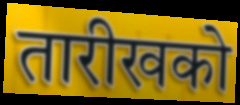
तारीखको